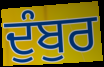
ਦੁੰਬੁਰ